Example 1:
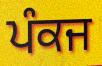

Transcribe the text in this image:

ਪੰਕਜ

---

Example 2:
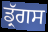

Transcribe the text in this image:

ਡ੍ਰੱਗਸ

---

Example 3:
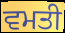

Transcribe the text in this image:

ਵਮਤੀ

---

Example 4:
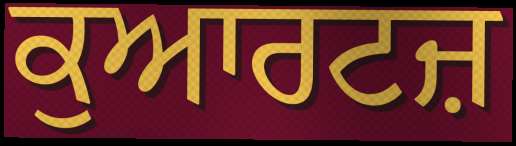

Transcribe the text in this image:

ਕੁਆਰਟਜ਼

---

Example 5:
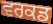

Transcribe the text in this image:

ਵਰਕਡ